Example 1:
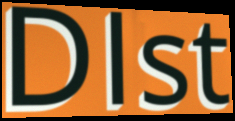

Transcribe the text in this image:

DIst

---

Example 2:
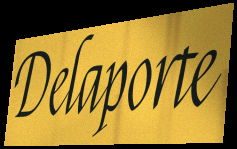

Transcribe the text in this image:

Delaporte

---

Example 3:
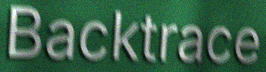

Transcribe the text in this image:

Backtrace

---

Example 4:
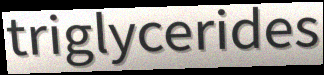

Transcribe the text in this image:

triglycerides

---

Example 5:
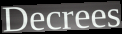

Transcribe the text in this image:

Decrees